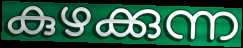
കുഴക്കുന്ന